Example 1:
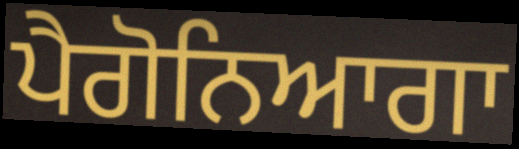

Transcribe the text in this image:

ਪੈਗੋਨਿਆਗਾ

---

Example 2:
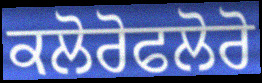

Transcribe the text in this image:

ਕਲੋਰੋਫਲੋਰੋ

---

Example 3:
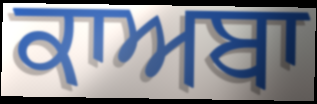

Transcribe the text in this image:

ਕਾਅਬਾ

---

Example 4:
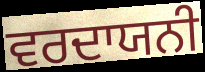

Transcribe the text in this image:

ਵਰਦਾਯਨੀ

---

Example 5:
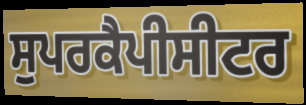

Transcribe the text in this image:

ਸੁਪਰਕੈਪੀਸੀਟਰ